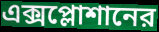
এক্সপ্লোশানের